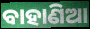
ବାହାଣିଆ